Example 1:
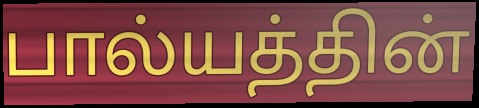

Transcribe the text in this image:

பால்யத்தின்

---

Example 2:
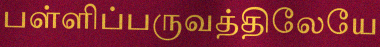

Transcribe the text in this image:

பள்ளிப்பருவத்திலேயே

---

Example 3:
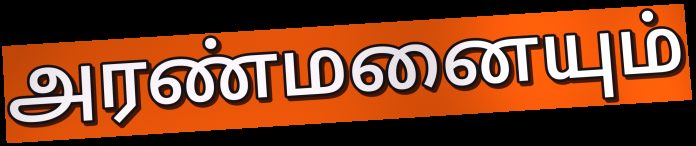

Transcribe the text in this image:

அரண்மனையும்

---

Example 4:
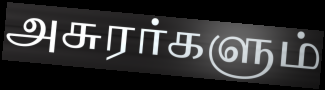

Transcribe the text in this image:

அசுரர்களும்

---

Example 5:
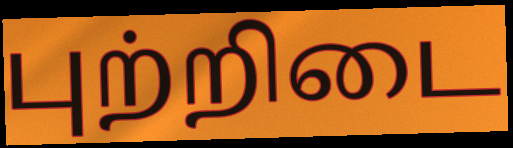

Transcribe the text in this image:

புற்றிடை